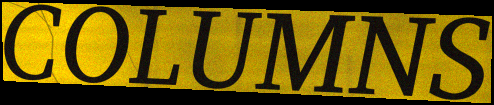
COLUMNS